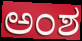
ಅಂಶ